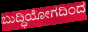
ಬುದ್ಧಿಯೋಗದಿಂದ